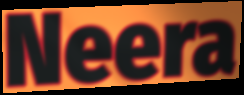
Neera